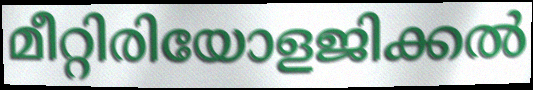
മീറ്റിരിയോളജിക്കൽ